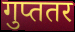
गुप्ततर